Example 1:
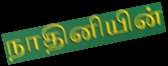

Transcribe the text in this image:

நாதினியின்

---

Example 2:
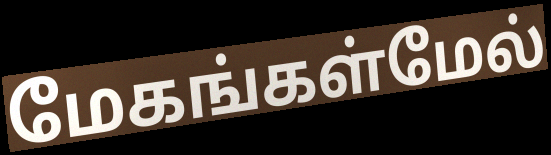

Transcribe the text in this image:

மேகங்கள்மேல்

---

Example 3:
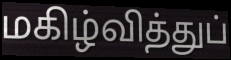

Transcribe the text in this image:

மகிழ்வித்துப்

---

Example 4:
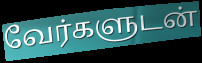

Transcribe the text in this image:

வேர்களுடன்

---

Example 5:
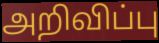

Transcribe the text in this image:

அறிவிப்பு